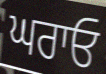
ਘਰਾਓ